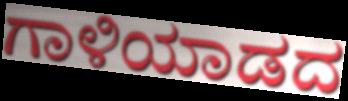
ಗಾಳಿಯಾಡದ